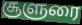
சூளுரை